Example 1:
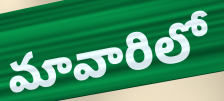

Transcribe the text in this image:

మావారిలో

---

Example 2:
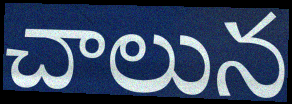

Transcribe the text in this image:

చాలున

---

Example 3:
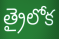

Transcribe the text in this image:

త్రైలోక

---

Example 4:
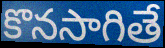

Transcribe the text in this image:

కొనసాగితే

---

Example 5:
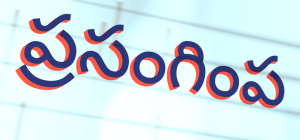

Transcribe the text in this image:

ప్రసంగింప